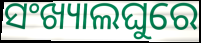
ସଂଖ୍ୟାଲଘୁରେ